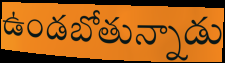
ఉండబోతున్నాడు